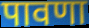
पावणा